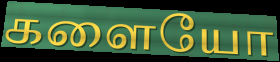
களையோ